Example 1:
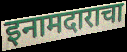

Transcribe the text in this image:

इनामदाराचा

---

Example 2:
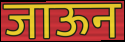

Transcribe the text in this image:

जाऊन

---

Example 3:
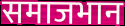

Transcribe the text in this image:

समाजभान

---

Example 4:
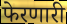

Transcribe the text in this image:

फेरणारी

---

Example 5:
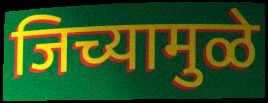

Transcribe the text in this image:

जिच्यामुळे